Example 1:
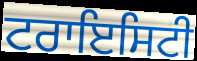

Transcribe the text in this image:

ਟਰਾਇਸਿਟੀ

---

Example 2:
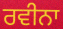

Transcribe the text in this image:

ਰਵੀਨਾ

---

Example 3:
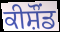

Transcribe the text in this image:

ਕੀਸ਼ੌਂਡ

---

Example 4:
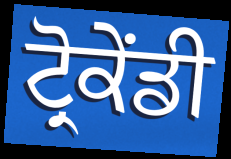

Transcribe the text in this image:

ਟ੍ਰੋਕੇਂਡੀ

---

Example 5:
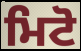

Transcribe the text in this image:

ਮਿਟੋ